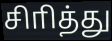
சிரித்து